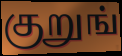
குறுங்